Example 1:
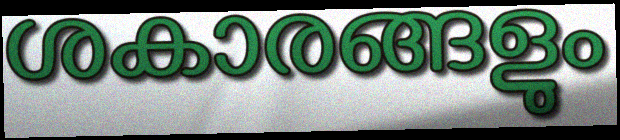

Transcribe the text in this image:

ശകാരങ്ങളും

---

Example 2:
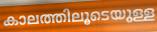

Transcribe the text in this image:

കാലത്തിലൂടെയുള്ള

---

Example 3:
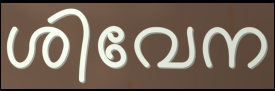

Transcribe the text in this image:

ശിവേന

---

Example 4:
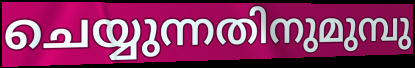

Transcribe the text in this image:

ചെയ്യുന്നതിനുമുമ്പു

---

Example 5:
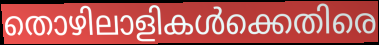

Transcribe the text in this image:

തൊഴിലാളികൾക്കെതിരെ